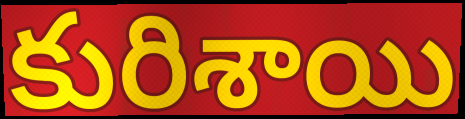
కురిశాయి